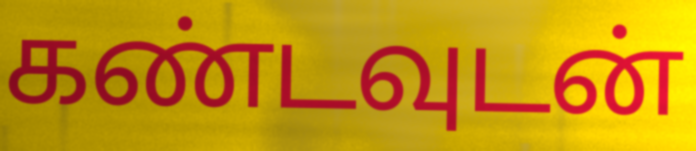
கண்டவுடன்